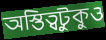
অস্তিত্বটুকুও